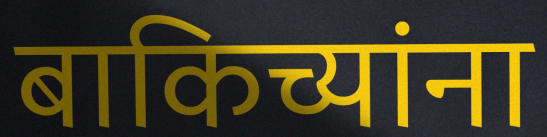
बाकिच्यांना